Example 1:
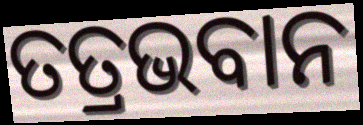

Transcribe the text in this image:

ତତ୍ରଭବାନ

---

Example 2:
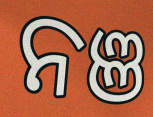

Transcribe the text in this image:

ନଞ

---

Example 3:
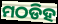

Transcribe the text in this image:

ମଠଡିହ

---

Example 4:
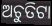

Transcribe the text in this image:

ଅଚୁତିଟା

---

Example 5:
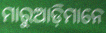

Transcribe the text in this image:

ମାରୁଆଡ଼ିମାନେ